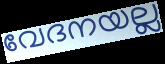
വേദനയല്ല